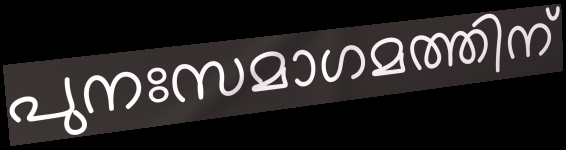
പുനഃസമാഗമത്തിന്